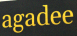
agadee